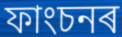
ফাংচনৰ